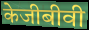
केजीबीवी